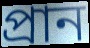
প্রান